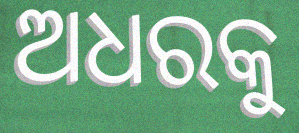
ଅଧରକୁ